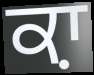
ਕ਼ਾ